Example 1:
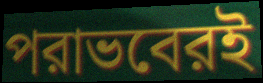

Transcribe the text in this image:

পরাভবেরই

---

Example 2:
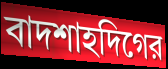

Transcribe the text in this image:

বাদশাহদিগের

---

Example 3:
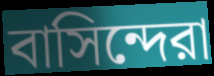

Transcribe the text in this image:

বাসিন্দেরা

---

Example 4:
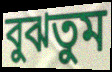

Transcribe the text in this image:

বুঝতুম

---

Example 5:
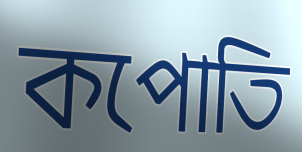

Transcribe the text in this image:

কপোতি